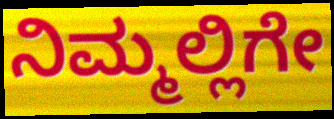
ನಿಮ್ಮಲ್ಲಿಗೇ